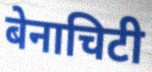
बेनाचिटी